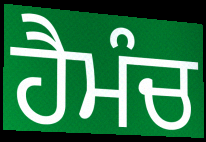
ਹੈਮੰਚ